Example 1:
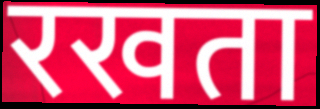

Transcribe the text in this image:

रखता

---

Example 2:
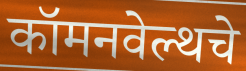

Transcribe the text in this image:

कॉमनवेल्थचे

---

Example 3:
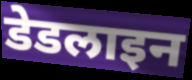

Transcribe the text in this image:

डेडलाइन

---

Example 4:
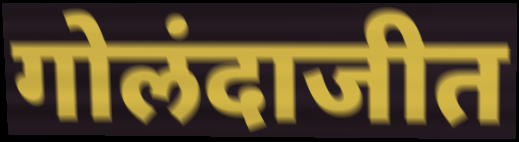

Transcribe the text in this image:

गोलंदाजीत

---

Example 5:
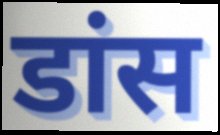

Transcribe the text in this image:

डांस